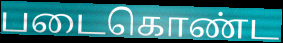
படைகொண்ட